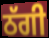
ਠੱਗੀ